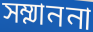
সম্মাননা